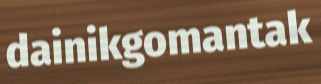
dainikgomantak